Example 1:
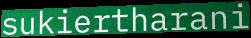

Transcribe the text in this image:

sukiertharani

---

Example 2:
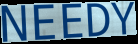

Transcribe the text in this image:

NEEDY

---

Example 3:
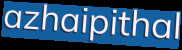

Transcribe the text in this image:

azhaipithal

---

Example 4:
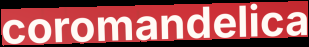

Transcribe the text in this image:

coromandelica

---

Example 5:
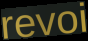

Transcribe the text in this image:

revoi